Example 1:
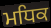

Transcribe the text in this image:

ਮਧਿਕ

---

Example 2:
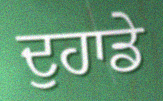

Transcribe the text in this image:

ਦੁਹਾਡੇ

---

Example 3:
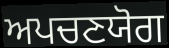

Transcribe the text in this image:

ਅਪਚਣਯੋਗ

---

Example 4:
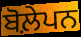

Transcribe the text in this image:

ਬੋਲ਼ੇਪਨ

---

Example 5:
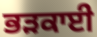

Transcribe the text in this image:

ਭੜਕਾਈ